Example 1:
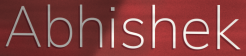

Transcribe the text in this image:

Abhishek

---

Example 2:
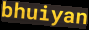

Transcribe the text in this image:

bhuiyan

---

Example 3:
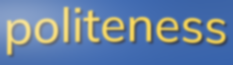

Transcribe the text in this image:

politeness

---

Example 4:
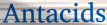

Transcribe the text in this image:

Antacids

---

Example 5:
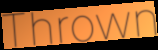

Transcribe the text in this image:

Thrown